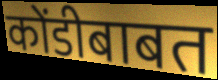
कोंडीबाबत